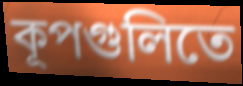
কূপগুলিতে